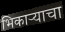
भिकाऱ्याचा